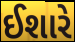
ઈશારે